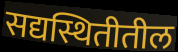
सद्यस्थितीतील